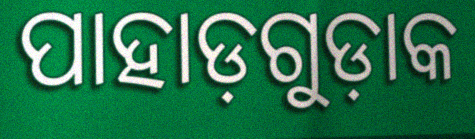
ପାହାଡ଼ଗୁଡ଼ାକ